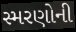
સ્મરણોની